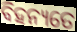
ବିହନ୍ୟତେ